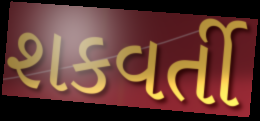
શકવર્તી